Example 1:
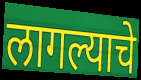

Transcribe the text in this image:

लागल्याचे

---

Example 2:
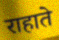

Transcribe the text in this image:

राहाते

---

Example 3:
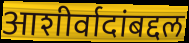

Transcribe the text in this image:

आशीर्वादांबद्दल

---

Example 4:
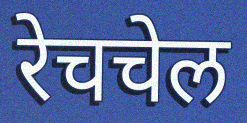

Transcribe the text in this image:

रेचचेल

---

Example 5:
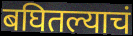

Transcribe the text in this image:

बघितल्याचं